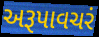
અરૂપાવચરં